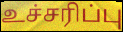
உச்சரிப்பு